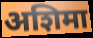
अशिमा